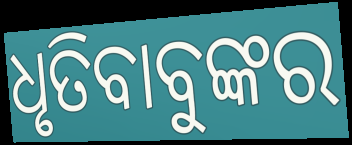
ଧୃତିବାବୁଙ୍କର